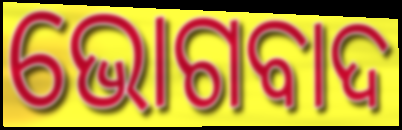
ଭୋଗବାଦ